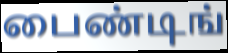
பைண்டிங்